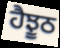
ਹੈਝੂਠ